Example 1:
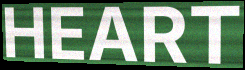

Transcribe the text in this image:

HEART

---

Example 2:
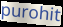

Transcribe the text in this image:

purohit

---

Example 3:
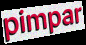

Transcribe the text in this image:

pimpar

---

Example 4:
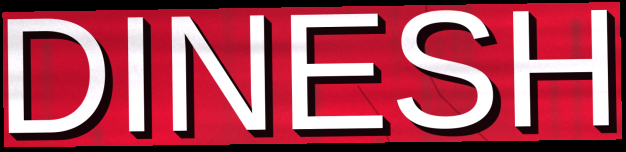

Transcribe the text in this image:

DINESH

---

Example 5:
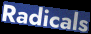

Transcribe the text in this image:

Radicals